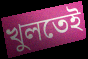
খুলতেই